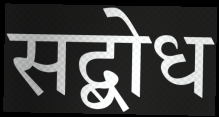
सद्बोध